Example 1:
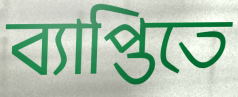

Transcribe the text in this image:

ব্যাপ্তিতে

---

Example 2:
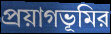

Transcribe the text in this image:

প্রয়াগভূমির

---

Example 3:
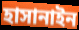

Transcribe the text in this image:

হাসানাইন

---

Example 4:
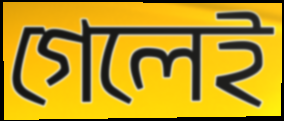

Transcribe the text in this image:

গেলেই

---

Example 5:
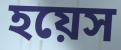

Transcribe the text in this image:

হয়েস